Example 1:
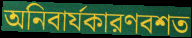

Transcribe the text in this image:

অনিবার্যকারণবশত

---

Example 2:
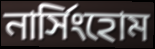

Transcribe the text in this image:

নার্সিংহোম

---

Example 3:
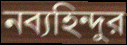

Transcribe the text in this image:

নব্যহিন্দুর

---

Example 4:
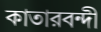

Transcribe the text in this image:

কাতারবন্দী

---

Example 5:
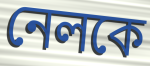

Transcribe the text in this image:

নেলকে